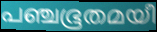
പഞ്ചഭൂതമയീ